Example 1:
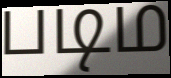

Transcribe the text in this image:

படிம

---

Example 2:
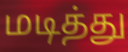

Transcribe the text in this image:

மடித்து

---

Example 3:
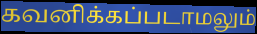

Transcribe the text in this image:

கவனிக்கப்படாமலும்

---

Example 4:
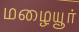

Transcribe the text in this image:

மழையூர்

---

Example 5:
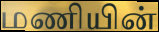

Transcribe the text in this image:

மணியின்